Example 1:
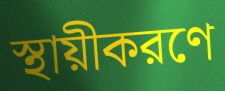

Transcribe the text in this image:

স্থায়ীকরণে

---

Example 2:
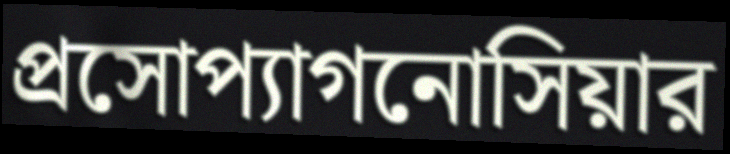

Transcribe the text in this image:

প্রসোপ্যাগনোসিয়ার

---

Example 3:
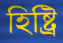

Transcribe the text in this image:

হিষ্ট্রি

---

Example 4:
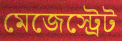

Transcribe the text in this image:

মেজেস্ট্রেট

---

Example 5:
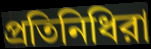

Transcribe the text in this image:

প্রতিনিধিরা